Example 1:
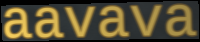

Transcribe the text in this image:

aavava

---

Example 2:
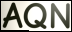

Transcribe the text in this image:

AQN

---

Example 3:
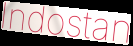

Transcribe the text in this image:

Indostan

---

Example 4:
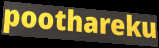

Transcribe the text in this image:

poothareku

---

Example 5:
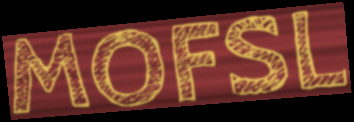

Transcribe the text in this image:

MOFSL